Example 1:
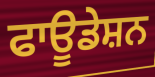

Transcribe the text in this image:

ਫਾਊਡੇਸ਼ਨ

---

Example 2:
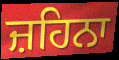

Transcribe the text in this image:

ਜ਼ਹਿਨਾ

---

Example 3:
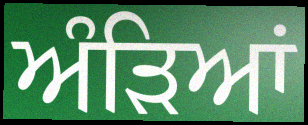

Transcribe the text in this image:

ਅੰੜਿਆਂ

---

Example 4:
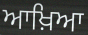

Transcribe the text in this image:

ਆਖ਼ਿਆ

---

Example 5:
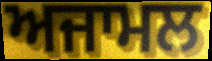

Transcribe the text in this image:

ਅਜਾਮਲ